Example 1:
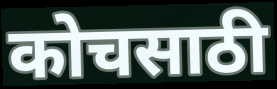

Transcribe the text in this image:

कोचसाठी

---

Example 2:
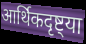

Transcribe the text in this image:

आर्थिकदृष्ट्या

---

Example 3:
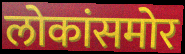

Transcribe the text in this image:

लोकांसमोर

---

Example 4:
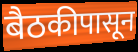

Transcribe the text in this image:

बैठकीपासून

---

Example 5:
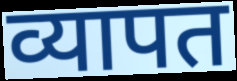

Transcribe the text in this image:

व्यापत